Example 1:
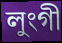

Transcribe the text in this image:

লুংগী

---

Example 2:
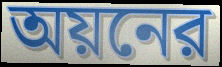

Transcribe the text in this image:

অয়নের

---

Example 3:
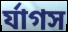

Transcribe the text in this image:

র্যাগস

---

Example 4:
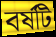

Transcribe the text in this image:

বর্ষটি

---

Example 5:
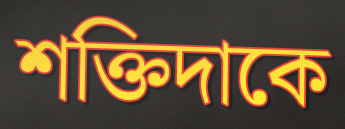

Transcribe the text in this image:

শক্তিদাকে